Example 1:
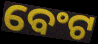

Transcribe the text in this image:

ବେଂଟ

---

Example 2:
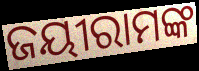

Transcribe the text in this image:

ଜୟୀରାମଙ୍କ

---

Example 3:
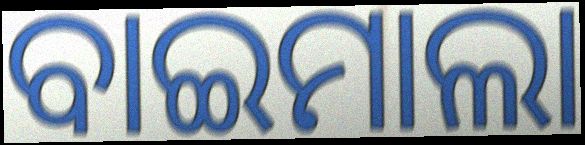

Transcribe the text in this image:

ବାଇମାଲା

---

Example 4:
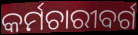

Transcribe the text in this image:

କର୍ମଚାରୀବର୍ଗ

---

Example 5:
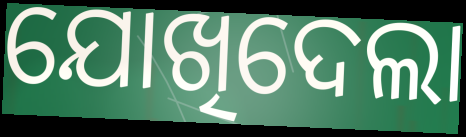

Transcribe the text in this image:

ଯୋଖିଦେଲା